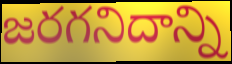
జరగనిదాన్ని